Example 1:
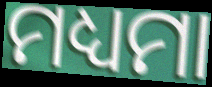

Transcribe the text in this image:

ମଧ୍ୟମା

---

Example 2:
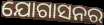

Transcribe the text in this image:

ଯୋଗାସନର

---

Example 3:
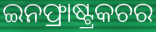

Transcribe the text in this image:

ଇନଫ୍ରାଷ୍ଟ୍ରକଚର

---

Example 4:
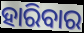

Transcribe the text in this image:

ହାରିବାର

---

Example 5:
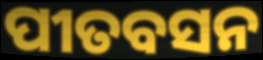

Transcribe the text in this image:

ପୀତବସନ